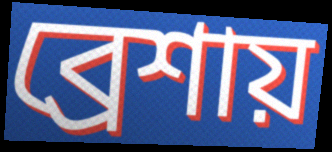
ব্রেশায়